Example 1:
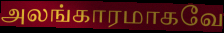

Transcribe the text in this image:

அலங்காரமாகவே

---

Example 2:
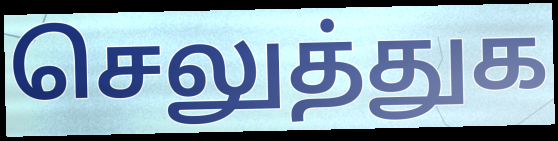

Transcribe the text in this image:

செலுத்துக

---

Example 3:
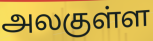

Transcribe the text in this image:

அலகுள்ள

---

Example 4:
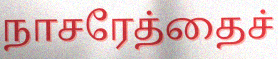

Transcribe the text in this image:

நாசரேத்தைச்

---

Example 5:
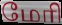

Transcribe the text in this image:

மேரி